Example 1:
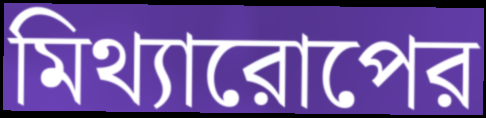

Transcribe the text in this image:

মিথ্যারোপের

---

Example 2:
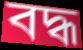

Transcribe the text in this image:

বদ্ধ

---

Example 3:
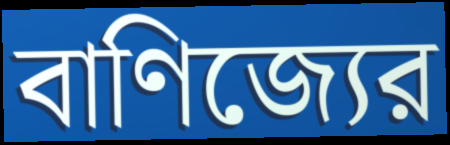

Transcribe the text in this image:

বাণিজ্যের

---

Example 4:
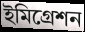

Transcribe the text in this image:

ইমিগ্রেশন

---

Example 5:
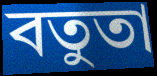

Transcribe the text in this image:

বতুতা